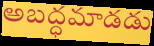
అబద్ధమాడడు